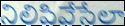
నిలిపివేసేలా